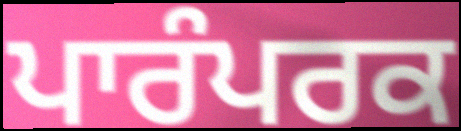
ਪਾਰੰਪਰਕ